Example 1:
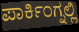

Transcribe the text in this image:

ಪಾರ್ಕಿಂಗ್ನಲ್ಲಿ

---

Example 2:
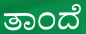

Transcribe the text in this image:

ತಾಂದೆ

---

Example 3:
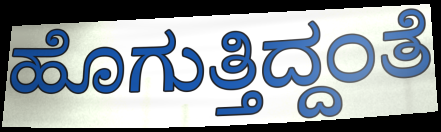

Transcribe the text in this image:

ಹೊಗುತ್ತಿದ್ದಂತೆ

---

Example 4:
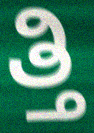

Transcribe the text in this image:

ತ್ತಿ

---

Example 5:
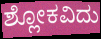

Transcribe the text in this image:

ಶ್ಲೋಕವಿದು